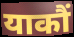
याकौं